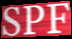
SPF